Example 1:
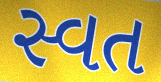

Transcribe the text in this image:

સ્વત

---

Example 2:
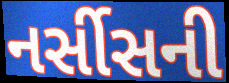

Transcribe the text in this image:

નર્સીસની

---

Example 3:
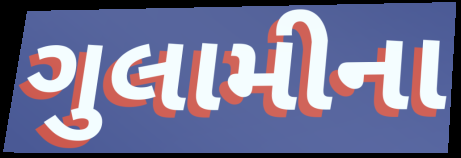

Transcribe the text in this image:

ગુલામીના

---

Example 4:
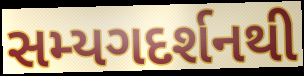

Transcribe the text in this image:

સમ્યગદર્શનથી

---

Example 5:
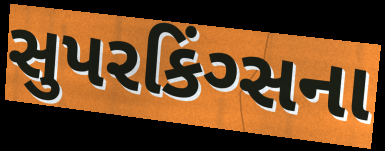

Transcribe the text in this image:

સુપરકિંગ્સના